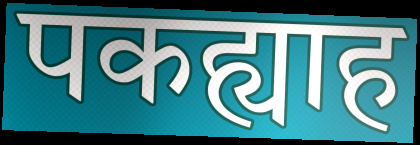
पकह्याह